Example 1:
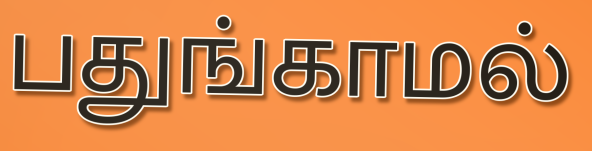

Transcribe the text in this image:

பதுங்காமல்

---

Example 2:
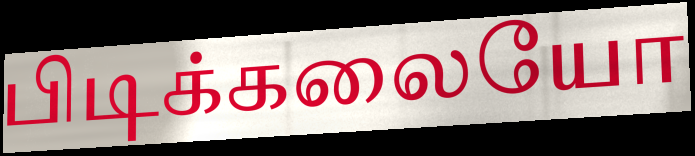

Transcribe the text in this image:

பிடிக்கலையோ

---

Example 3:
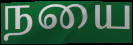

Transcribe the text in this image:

நயை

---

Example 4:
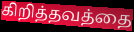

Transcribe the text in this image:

கிறித்தவத்தை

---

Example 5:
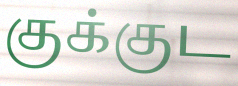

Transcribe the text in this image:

குக்குட